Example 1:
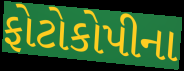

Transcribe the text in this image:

ફોટોકોપીના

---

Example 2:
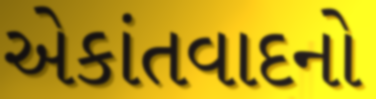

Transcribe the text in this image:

એકાંતવાદનો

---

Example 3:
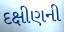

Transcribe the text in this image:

દક્ષીણની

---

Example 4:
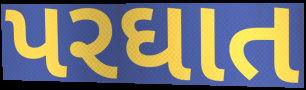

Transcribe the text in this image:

પરઘાત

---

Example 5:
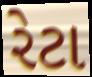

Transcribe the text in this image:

રેટા